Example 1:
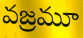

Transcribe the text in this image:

వజ్రమూ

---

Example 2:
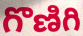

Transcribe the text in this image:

గొణిగి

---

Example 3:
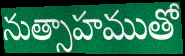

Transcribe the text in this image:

నుత్సాహముతో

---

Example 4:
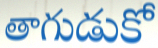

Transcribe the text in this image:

తాగుడుకో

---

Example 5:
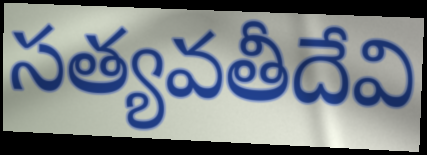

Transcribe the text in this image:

సత్యవతీదేవి